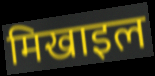
मिखाइल